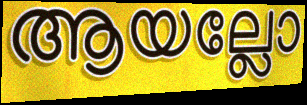
ആയല്ലോ